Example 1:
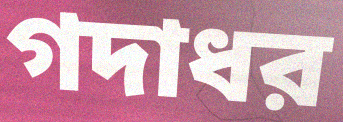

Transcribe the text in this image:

গদাধর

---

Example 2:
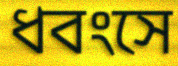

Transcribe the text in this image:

ধবংসে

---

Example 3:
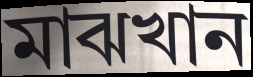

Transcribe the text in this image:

মাঝখান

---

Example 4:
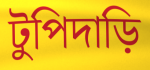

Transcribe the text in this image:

টুপিদাড়ি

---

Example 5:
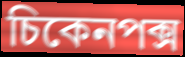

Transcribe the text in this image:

চিকেনপক্স